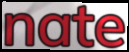
nate